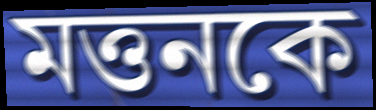
মত্তনকে